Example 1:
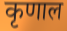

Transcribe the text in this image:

कृणाल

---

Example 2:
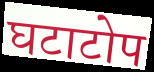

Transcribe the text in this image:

घटाटोप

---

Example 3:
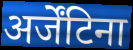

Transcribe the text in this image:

अर्जेंटिना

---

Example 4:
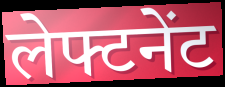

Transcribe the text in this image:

लेफ्टनेंट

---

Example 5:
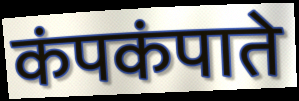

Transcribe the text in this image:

कंपकंपाते